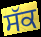
ਸੱਕ